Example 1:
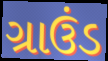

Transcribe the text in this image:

ગ્રાઉંડ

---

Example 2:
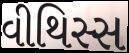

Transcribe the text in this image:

વીથિસ્સ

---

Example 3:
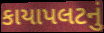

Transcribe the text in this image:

કાયાપલટનું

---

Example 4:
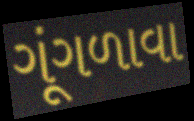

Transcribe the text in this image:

ગૂંગળાવા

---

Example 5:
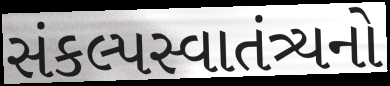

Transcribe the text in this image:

સંકલ્પસ્વાતંત્ર્યનો